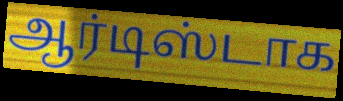
ஆர்டிஸ்டாக